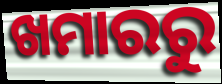
ଖମାରରୁ